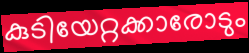
കുടിയേറ്റക്കാരോടും